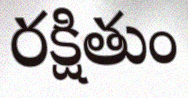
రక్షితుం